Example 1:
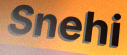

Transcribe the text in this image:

Snehi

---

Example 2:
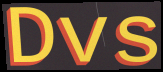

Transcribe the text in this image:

Dvs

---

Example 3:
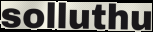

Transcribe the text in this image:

solluthu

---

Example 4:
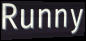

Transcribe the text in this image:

Runny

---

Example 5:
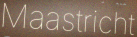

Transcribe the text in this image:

Maastricht